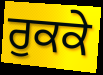
ਰੁਕਕੇ